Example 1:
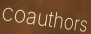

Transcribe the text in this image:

coauthors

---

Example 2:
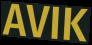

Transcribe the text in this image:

AVIK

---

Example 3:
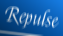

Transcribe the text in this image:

Repulse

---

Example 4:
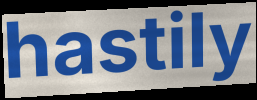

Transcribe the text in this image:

hastily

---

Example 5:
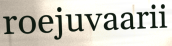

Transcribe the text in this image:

roejuvaarii